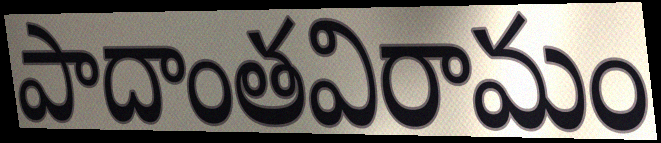
పాదాంతవిరామం